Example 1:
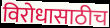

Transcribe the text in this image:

विरोधासाठीच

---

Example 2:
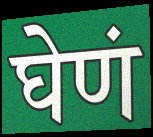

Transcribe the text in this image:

घेणं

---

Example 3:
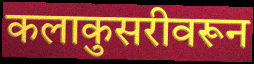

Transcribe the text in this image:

कलाकुसरीवरून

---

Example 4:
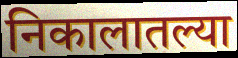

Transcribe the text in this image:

निकालातल्या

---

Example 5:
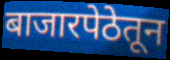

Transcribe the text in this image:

बाजारपेठेतून